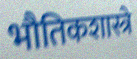
भौतिकशास्त्रे